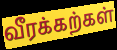
வீரக்கற்கள்